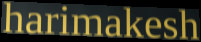
harimakesh